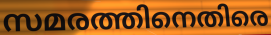
സമരത്തിനെതിരെ